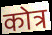
कोत्र